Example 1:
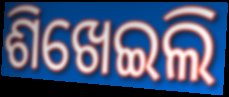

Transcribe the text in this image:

ଶିଖେଇଲି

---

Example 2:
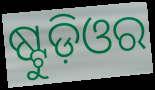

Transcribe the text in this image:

ଷ୍ଟୁଡ଼ିଓର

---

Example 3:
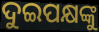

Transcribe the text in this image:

ଦୁଇପକ୍ଷଙ୍କୁ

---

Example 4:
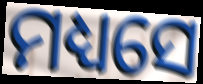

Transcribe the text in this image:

ମଧ୍ୟସେ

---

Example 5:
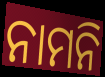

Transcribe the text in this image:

ନାମନି